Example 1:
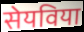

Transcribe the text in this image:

सेयविया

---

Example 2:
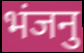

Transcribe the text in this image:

भंजनु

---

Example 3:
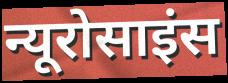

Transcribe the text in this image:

न्यूरोसाइंस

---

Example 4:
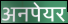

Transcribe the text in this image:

अनपेयर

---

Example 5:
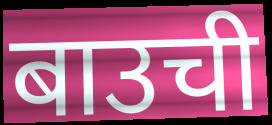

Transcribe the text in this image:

बाउची